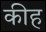
कीह